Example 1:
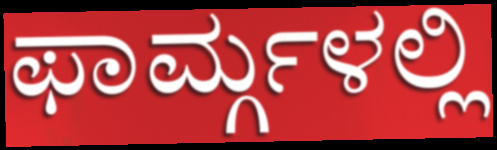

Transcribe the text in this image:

ಫಾರ್ಮ್ಗಳಲ್ಲಿ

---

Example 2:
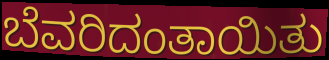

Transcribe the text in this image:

ಬೆವರಿದಂತಾಯಿತು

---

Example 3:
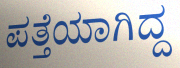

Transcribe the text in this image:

ಪತ್ತೆಯಾಗಿದ್ದ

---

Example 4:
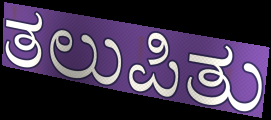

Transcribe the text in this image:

ತಲುಪಿತು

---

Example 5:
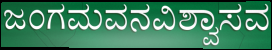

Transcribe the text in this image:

ಜಂಗಮವನವಿಶ್ವಾಸವ